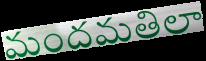
మందమతిలా